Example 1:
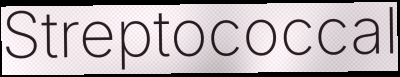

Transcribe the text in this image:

Streptococcal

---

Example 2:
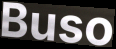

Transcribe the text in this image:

Buso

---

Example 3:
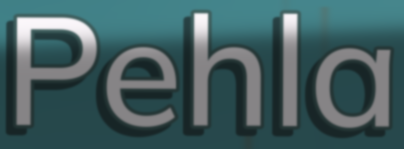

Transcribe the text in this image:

Pehla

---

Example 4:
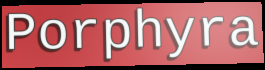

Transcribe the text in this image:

Porphyra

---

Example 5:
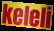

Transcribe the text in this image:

keleli